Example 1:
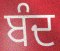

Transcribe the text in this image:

ਬੰਦ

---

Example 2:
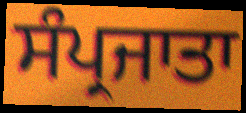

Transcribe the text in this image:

ਸੰਪ੍ਰਜਾਤਾ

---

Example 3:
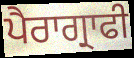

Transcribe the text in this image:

ਪੈਰਾਗ੍ਰਾਫੀ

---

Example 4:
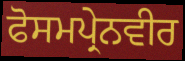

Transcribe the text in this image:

ਫੋਸਮਪ੍ਰੇਨਵੀਰ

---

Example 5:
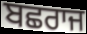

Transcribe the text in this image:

ਬਛਰਾਜ